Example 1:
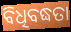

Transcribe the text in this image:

ବିଧିବଦ୍ଧତା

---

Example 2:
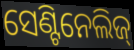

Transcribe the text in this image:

ସେଣ୍ଟିନେଲିଜ୍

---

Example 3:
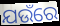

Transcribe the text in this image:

ଯଉଁରେ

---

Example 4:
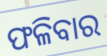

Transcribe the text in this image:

ଫଳିବାର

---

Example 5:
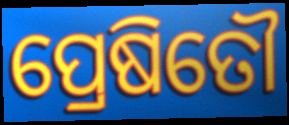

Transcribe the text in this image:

ପ୍ରେଷିତୌ